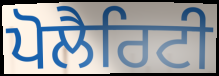
ਪੋਲੈਰਿਟੀ